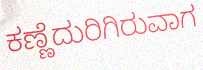
ಕಣ್ಣೆದುರಿಗಿರುವಾಗ